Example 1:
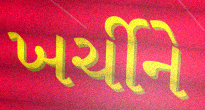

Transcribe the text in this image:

ખર્ચીને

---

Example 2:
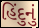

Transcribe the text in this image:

હિંદુનું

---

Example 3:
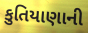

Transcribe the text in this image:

કુતિયાણાની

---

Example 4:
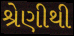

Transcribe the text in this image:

શ્રેણીથી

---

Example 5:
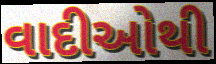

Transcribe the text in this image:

વાદીઓથી